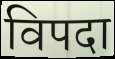
विपदा